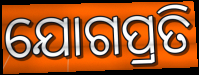
ଯୋଗପ୍ରତି